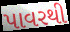
પાવરથી